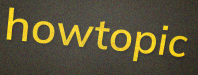
howtopic